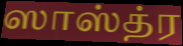
ஸாஸ்த்ர